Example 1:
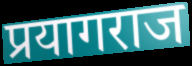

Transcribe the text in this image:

प्रयागराज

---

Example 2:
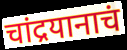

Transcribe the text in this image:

चांद्रयानाचं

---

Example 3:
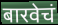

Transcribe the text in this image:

बारवेचं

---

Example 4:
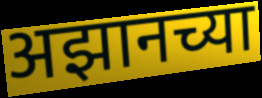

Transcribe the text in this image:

अझानच्या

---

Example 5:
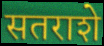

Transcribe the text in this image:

सतराशे